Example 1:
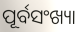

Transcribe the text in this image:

ପୂର୍ବସଂଖ୍ୟା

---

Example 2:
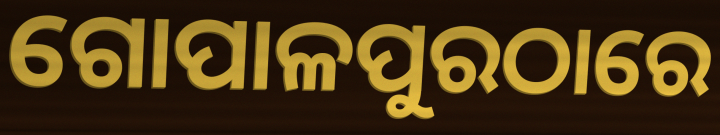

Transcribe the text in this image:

ଗୋପାଳପୁରଠାରେ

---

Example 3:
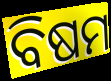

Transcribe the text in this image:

ବିଷମ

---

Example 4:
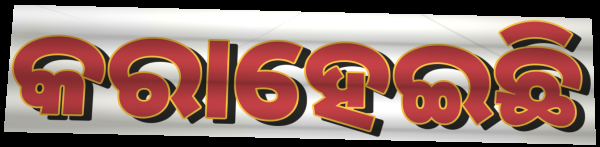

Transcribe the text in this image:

କରାହେଇଛି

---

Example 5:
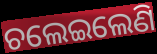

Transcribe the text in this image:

ଚଲେଇଲେଣି